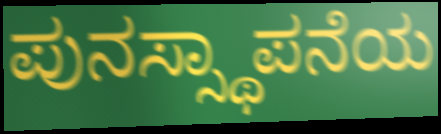
ಪುನಸ್ಸ್ಥಾಪನೆಯ